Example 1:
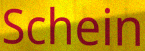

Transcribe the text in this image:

Schein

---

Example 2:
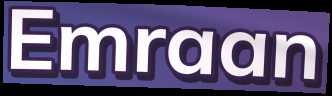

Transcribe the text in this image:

Emraan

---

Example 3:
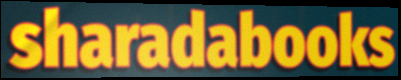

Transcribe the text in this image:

sharadabooks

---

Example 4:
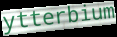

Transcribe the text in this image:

ytterbium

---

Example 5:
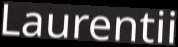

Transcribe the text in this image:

Laurentii